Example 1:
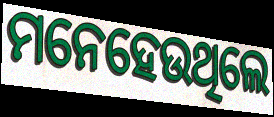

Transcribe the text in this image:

ମନେହେଉଥିଲେ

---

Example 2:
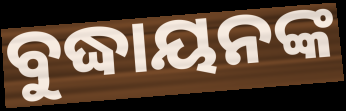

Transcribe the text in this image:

ବୁଦ୍ଧାୟନଙ୍କ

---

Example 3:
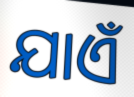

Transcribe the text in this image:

ଯାଏଁ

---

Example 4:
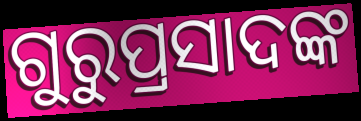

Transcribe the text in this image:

ଗୁରୁପ୍ରସାଦଙ୍କ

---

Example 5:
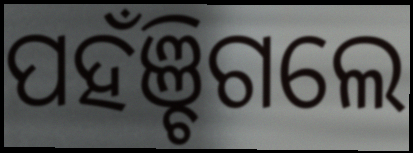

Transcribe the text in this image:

ପହଁଞ୍ଚିଗଲେ